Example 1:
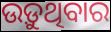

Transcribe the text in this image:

ଉଡ଼ୁଥିବାର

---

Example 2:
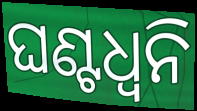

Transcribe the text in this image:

ଘଣ୍ଟଧ୍ୱନି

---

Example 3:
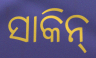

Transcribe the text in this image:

ସାକିନ୍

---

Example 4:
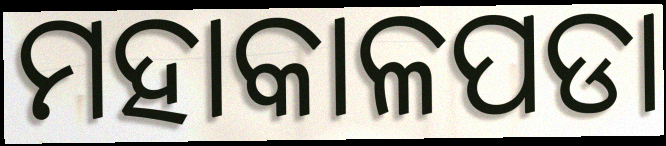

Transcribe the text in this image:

ମହାକାଳପଡା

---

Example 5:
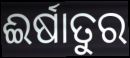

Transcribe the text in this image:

ଈର୍ଷାତୁର